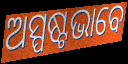
ଅସ୍ପଷ୍ଟଭାବେ